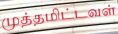
முத்தமிட்டவள்